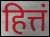
हित्तं